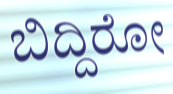
ಬಿದ್ದಿರೋ